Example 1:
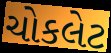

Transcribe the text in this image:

ચોકલેટ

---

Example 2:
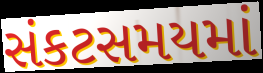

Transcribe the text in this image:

સંકટસમયમાં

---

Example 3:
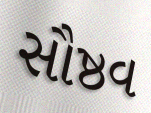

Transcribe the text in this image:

સૌષ્ઠવ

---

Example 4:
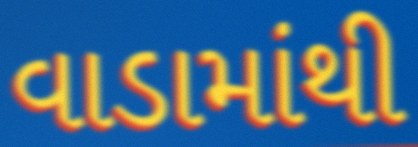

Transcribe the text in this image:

વાડામાંથી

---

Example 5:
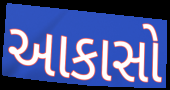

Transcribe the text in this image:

આકાસો